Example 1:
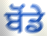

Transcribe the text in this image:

ਬੋਂਡੇ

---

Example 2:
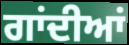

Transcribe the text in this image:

ਗਾਂਦੀਆਂ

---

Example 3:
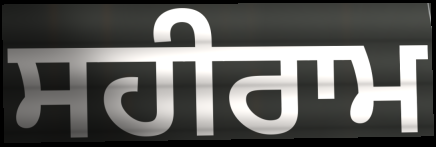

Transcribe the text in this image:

ਸਹੀਰਾਮ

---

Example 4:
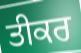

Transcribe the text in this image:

ਤੀਕਰ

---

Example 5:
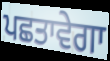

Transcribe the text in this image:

ਪਛਤਾਵੇਗਾ